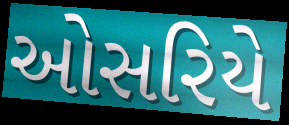
ઓસરિયે